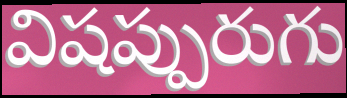
విషప్పురుగు